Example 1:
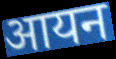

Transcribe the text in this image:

आयन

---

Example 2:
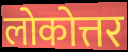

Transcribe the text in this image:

लोकोत्तर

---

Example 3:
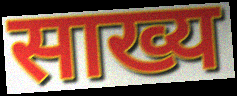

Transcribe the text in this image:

साख्य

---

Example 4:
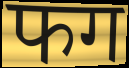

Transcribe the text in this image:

फग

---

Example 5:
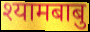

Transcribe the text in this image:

श्यामबाबु